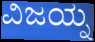
ವಿಜಯ್ನ